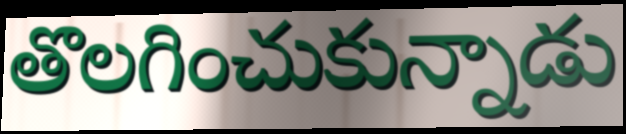
తొలగించుకున్నాడు